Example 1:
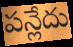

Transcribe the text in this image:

పన్లేదు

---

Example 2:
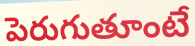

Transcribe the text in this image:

పెరుగుతూంటే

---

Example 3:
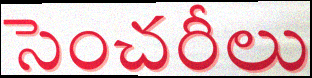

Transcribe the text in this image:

సెంచరీలు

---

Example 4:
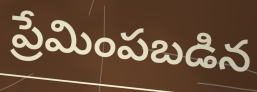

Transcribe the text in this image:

ప్రేమింపబడిన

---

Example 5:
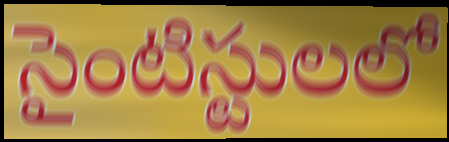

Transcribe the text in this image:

సైంటిస్టులలో